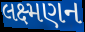
લક્ષ્મણન